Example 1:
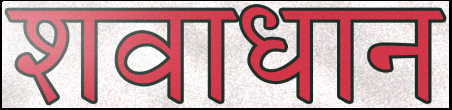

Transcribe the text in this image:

शवाधान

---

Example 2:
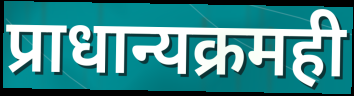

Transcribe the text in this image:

प्राधान्यक्रमही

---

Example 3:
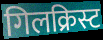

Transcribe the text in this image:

गिलक्रिस्‍ट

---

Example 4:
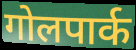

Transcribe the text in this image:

गोलपार्क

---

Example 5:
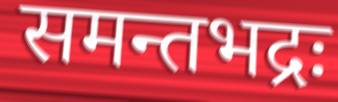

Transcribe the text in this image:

समन्तभद्रः